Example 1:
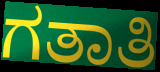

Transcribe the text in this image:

ಗತಾತಿ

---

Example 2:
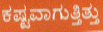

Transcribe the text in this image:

ಕಷ್ಟವಾಗುತ್ತಿತ್ತು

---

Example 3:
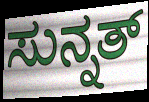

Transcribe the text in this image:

ಸುನ್ನತ್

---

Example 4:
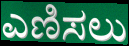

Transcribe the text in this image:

ಎಣಿಸಲು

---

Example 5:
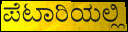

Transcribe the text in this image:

ಪೆಟಾರಿಯಲ್ಲಿ